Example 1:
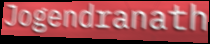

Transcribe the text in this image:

Jogendranath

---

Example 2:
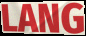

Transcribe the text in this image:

LANG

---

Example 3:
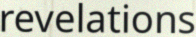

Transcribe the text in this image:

revelations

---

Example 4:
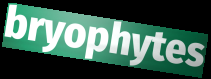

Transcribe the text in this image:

bryophytes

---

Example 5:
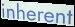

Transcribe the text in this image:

inherent